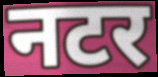
नटर